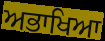
ਅਭਾਖਿਆ